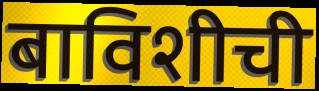
बाविशीची